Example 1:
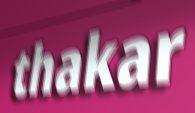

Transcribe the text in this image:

thakar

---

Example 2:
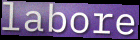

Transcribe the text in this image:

labore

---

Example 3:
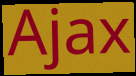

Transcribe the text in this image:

Ajax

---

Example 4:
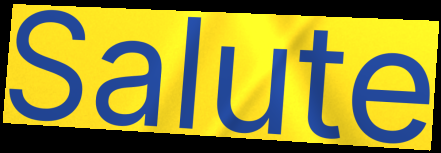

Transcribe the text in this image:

Salute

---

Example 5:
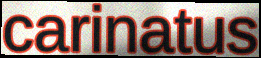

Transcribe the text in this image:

carinatus